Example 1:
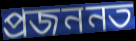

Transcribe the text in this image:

প্ৰজননত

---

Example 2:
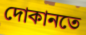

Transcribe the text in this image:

দোকানতে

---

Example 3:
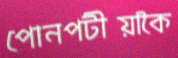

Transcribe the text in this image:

পোনপটীয়াকৈ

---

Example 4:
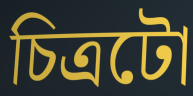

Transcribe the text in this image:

চিত্ৰটো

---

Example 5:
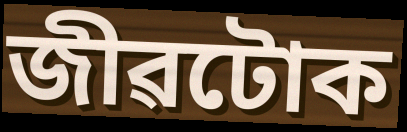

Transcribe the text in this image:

জীৱটোক